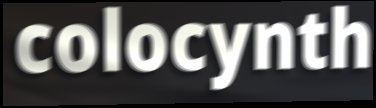
colocynth